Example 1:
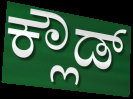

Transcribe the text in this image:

ಕ್ಲೌಡ್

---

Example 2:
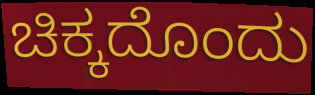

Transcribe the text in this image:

ಚಿಕ್ಕದೊಂದು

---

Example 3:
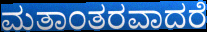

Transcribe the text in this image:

ಮತಾಂತರವಾದರೆ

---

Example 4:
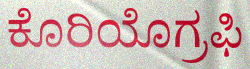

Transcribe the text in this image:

ಕೊರಿಯೊಗ್ರಫಿ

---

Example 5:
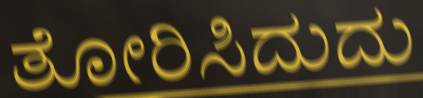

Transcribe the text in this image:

ತೋರಿಸಿದುದು